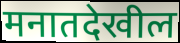
मनातदेखील